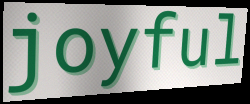
joyful